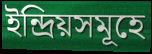
ইন্দ্রিয়সমূহে